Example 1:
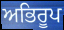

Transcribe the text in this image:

ਅਭਿਰੂਪ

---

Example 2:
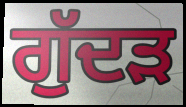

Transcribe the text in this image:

ਗੁੱਦੜ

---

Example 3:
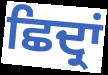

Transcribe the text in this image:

ਛਿਦ੍ਰਾਂ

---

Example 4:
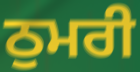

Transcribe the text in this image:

ਠੁਮਰੀ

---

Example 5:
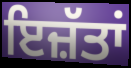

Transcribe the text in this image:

ਇਜ਼ੱਤਾਂ